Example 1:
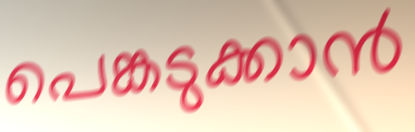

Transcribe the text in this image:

പെങ്കടുക്കാൻ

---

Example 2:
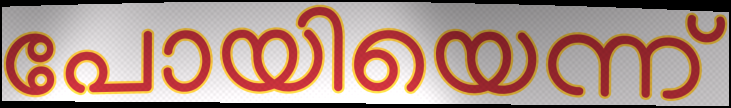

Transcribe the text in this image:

പോയിയെന്ന്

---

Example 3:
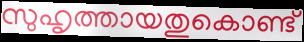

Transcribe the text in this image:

സുഹൃത്തായതുകൊണ്ട്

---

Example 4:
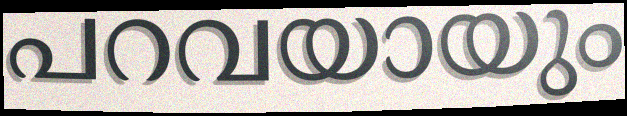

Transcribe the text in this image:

പറവയായും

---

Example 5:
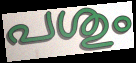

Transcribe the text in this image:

പശും